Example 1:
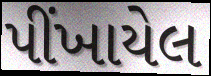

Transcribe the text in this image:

પીંખાયેલ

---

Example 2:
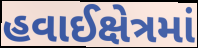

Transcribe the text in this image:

હવાઈક્ષેત્રમાં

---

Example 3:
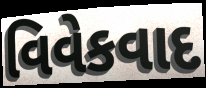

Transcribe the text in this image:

વિવેકવાદ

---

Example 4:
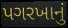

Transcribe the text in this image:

પગરખાનું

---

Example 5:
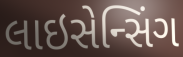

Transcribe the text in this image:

લાઇસેન્સિંગ